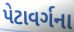
પેટાવર્ગના